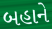
બહાને